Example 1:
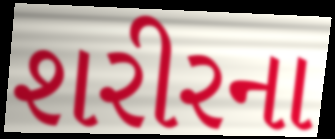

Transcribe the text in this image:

શરીરના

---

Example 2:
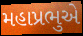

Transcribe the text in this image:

મહાપ્રભુએ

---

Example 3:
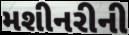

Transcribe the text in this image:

મશીનરીની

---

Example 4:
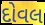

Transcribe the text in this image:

દોવલ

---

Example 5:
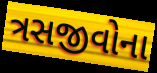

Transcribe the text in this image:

ત્રસજીવોના